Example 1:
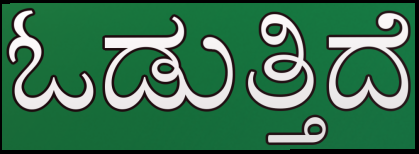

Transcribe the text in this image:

ಓಡುತ್ತಿದೆ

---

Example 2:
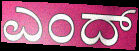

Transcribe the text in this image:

ಎಂದ್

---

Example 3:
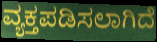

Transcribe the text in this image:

ವ್ಯಕ್ತಪಡಿಸಲಾಗಿದೆ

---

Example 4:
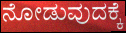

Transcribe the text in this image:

ನೋಡುವುದಕ್ಕೆ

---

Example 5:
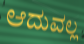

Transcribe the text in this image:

ಆದುವಲ್ಲ